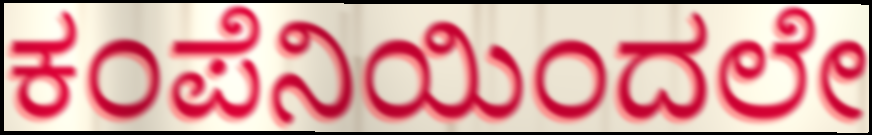
ಕಂಪೆನಿಯಿಂದಲೇ